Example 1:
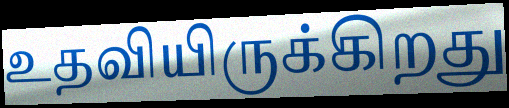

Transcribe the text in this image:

உதவியிருக்கிறது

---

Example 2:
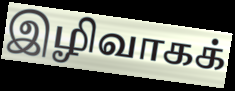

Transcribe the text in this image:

இழிவாகக்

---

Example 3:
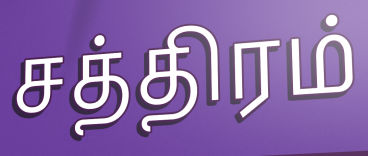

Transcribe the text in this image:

சத்திரம்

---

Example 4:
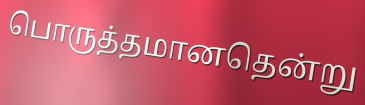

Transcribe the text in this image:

பொருத்தமானதென்று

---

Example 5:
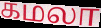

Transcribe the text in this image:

கமலா